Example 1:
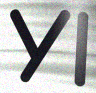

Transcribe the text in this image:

Yl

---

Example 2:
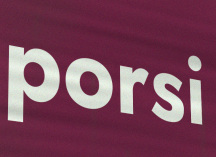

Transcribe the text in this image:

porsi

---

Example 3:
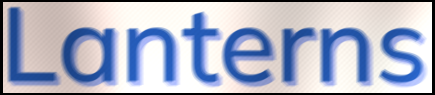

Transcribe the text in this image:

Lanterns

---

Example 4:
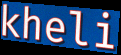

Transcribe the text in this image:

kheli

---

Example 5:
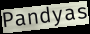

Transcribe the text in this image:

Pandyas